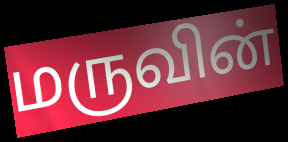
மருவின்